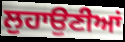
ਲੁਹਾਉਣੀਆਂ